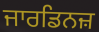
ਜਾਰਡਿਨਜ਼